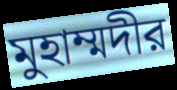
মুহাম্মদীর